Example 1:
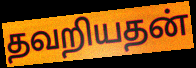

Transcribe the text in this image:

தவறியதன்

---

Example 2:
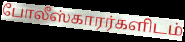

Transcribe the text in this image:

போலீஸ்காரர்களிடம்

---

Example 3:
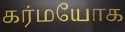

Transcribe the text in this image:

கர்மயோக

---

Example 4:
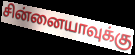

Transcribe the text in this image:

சின்னையாவுக்கு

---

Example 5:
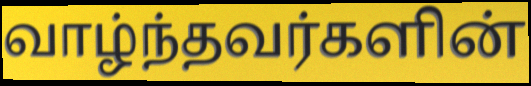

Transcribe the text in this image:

வாழ்ந்தவர்களின்